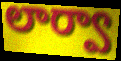
లార్వా